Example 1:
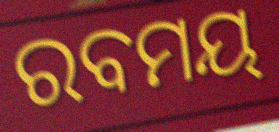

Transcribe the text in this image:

ରବମୟ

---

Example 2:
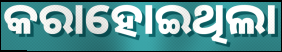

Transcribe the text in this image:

କରାହୋଇଥିଲା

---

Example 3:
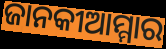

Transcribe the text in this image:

ଜାନକୀଆମ୍ମାର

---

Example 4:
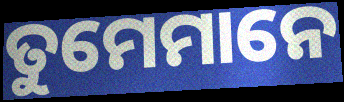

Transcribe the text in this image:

ତୁମେମାନେ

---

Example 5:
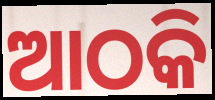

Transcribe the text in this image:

ଆଠକି